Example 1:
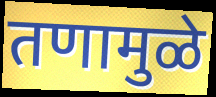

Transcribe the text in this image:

तणामुळे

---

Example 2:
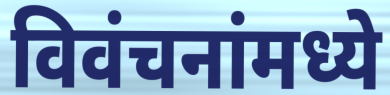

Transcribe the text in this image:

विवंचनांमध्ये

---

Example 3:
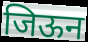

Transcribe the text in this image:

जिऊन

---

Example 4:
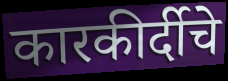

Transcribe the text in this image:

कारकीर्दीचे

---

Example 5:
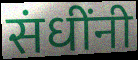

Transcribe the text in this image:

संधींनी